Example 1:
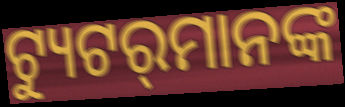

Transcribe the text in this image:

ଟ୍ୟୁଟର୍‍ମାନଙ୍କ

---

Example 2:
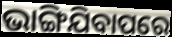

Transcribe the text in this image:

ଭାଙ୍ଗିଯିବାପରେ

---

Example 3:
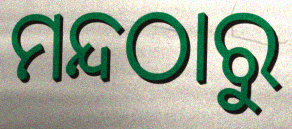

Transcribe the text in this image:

ମନ୍ଦଠାରୁ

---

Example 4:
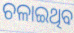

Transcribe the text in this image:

ଚଳାଇଥିବ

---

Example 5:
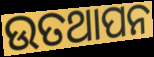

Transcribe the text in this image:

ଉତଥାପନ